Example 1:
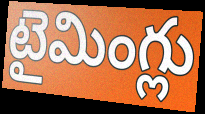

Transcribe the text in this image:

టైమింగ్లు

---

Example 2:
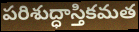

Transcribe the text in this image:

పరిశుద్ధాస్తికమత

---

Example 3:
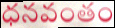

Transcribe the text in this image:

ధనవంతం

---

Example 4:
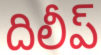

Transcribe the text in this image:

దిలీప్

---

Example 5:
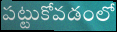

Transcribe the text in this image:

పట్టుకోవడంలో